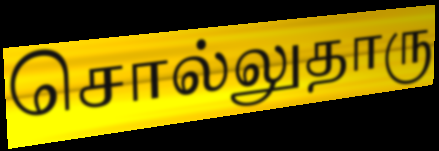
சொல்லுதாரு